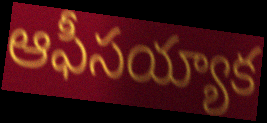
ఆఫీసయ్యాక